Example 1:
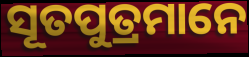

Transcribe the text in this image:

ସୂତପୁତ୍ରମାନେ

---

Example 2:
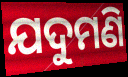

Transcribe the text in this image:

ଯଦୁମଣି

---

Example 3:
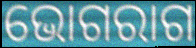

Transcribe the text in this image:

ଭୋଗରାଗ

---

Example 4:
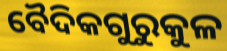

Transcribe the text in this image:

ବୈଦିକଗୁରୁକୁଳ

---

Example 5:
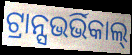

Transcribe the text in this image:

ଟ୍ରାନ୍ସଭର୍ଭିକାଲ୍